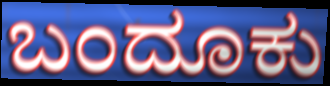
ಬಂದೂಕು